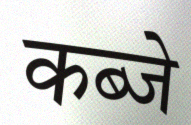
कब्जे